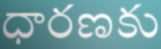
ధారణకు